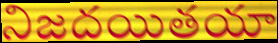
నిజదయితయా